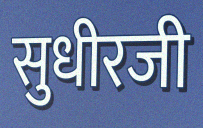
सुधीरजी